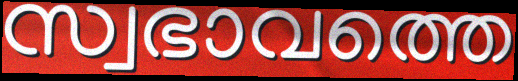
സ്വഭാവത്തെ